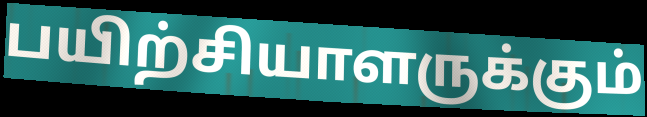
பயிற்சியாளருக்கும்